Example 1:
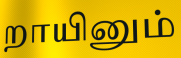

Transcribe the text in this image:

றாயினும்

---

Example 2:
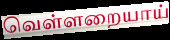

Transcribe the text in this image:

வெள்ளறையாய்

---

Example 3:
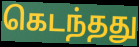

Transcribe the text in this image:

கெடந்தது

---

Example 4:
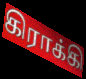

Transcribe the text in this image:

கிராக்கி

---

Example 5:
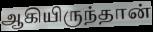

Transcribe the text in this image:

ஆகியிருந்தான்